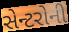
સેન્ટરોની